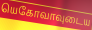
யெகோவாவுடைய